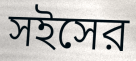
সইসের